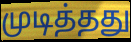
முடித்தது